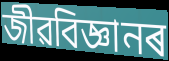
জীৱবিজ্ঞানৰ